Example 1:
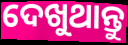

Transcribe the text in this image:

ଦେଖୁଥାନ୍ତୁ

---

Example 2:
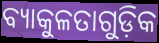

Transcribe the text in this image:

ବ୍ୟାକୁଳତାଗୁଡ଼ିକ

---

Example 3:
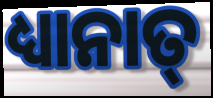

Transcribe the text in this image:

ଧ୍ୟାନାତ୍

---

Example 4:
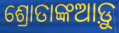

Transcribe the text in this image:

ଶ୍ରୋତାଙ୍କଆଡ଼ୁ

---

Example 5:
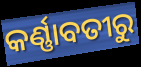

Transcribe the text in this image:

କର୍ଣ୍ଣାବତୀରୁ